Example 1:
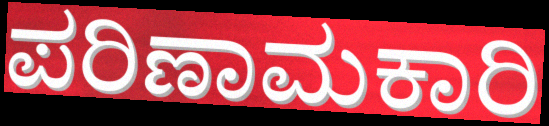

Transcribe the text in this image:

ಪರಿಣಾಮಕಾರಿ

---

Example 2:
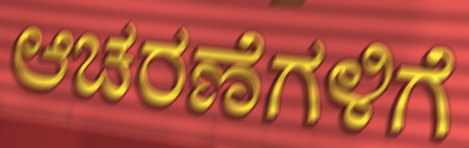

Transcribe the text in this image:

ಆಚರಣೆಗಳಿಗೆ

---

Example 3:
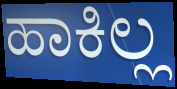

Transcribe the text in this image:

ಹಾಕಿಲ್ಲ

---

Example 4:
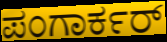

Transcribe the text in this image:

ಪಂಗಾರ್ಕರ್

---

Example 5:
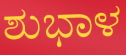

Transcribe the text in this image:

ಶುಭಾಳ